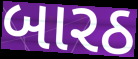
બારઠ